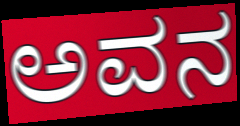
ಅವನ